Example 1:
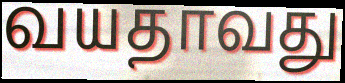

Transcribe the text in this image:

வயதாவது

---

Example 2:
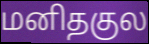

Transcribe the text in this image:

மனிதகுல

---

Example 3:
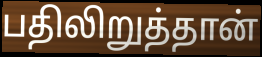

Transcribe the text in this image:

பதிலிறுத்தான்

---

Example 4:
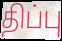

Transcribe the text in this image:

திப்பு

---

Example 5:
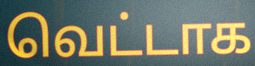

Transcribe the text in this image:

வெட்டாக